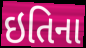
ઇતિના